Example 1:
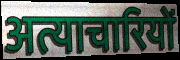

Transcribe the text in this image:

अत्याचारियों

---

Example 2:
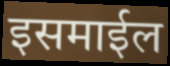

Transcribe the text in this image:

इसमाईल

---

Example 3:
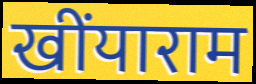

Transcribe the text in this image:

खींयाराम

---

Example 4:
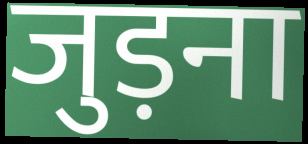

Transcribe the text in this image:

जुड़ना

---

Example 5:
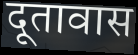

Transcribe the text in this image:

दूतावास